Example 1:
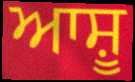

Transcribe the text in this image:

ਆਸ਼ੂ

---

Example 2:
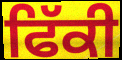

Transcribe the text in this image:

ਫਿੱਕੀ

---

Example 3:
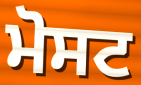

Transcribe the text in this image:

ਮੋਸਟ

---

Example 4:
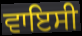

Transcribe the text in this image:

ਵਾਇਸੀ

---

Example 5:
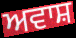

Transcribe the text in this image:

ਅਵਾਸ਼